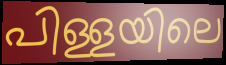
പിള്ളയിലെ